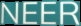
NEER